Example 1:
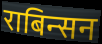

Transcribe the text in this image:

राबिन्सन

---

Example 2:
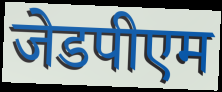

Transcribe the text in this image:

जेडपीएम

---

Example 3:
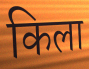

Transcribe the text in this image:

किला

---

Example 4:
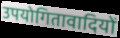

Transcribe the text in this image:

उपयोगितावादियों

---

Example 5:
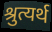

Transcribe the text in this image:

श्रुत्यर्थ